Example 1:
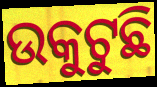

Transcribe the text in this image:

ଉକୁଟୁଛି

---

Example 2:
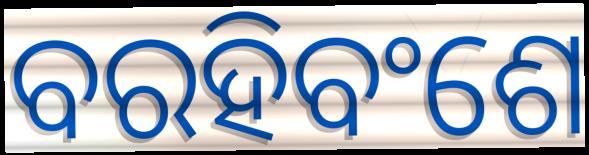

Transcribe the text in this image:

ବରହିବଂଶେ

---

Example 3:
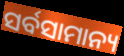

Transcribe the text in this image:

ସର୍ବସାମାନ୍ୟ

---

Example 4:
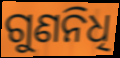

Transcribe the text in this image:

ଗୁଣନିଧି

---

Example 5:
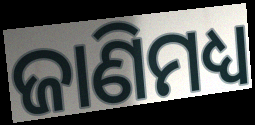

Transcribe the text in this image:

ଜାଣିମଧ୍ୟ